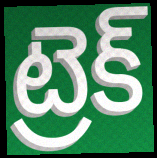
ట్రెక్